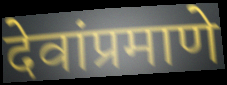
देवांप्रमाणे